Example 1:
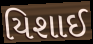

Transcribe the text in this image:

યિશાઈ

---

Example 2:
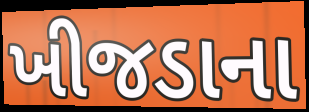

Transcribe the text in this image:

ખીજડાના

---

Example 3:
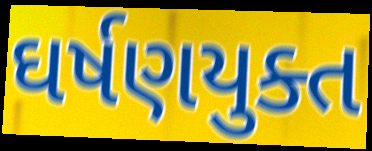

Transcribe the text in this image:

ઘર્ષણયુક્ત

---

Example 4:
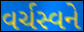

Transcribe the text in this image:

વર્ચસ્વને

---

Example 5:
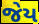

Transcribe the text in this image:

જેય